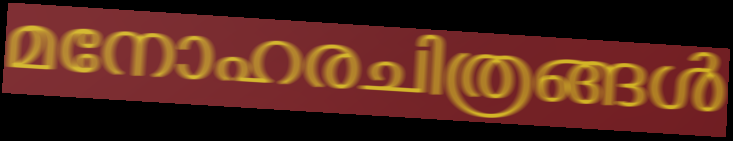
മനോഹരചിത്രങ്ങൾ